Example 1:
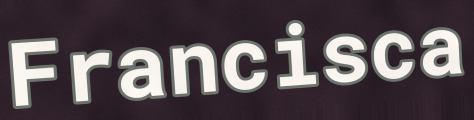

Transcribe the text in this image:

Francisca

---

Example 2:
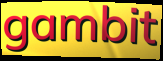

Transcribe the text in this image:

gambit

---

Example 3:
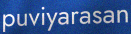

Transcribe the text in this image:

puviyarasan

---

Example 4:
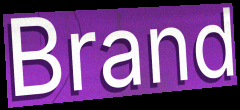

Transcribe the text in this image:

Brand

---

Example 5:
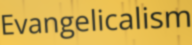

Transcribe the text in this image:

Evangelicalism